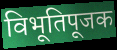
विभूतिपूजक